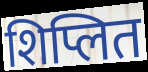
शिप्लित